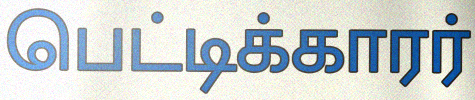
பெட்டிக்காரர்